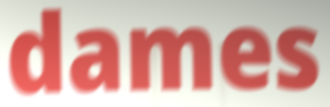
dames